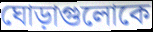
ঘোড়াগুলোকে